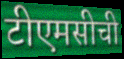
टीएमसीची